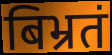
बिभ्रतं